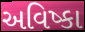
અવિષ્કા